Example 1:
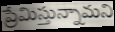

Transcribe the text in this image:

ప్రేమిస్తున్నామని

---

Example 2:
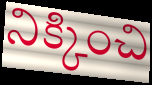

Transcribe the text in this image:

నిక్కించి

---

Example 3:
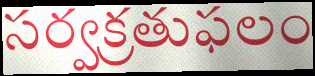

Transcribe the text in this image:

సర్వక్రతుఫలం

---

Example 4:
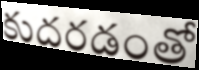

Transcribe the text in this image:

కుదరడంతో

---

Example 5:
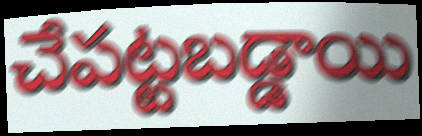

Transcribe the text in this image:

చేపట్టబడ్డాయి